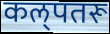
कल्पतरू